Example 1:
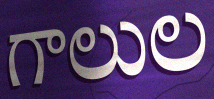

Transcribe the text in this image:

గాలుల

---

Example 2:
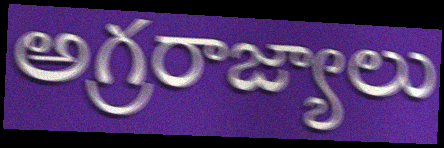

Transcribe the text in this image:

అగ్రరాజ్యాలు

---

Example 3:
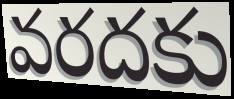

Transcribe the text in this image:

వరదకు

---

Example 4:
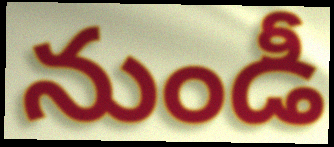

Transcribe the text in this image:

నుండీ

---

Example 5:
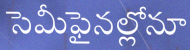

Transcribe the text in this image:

సెమీఫైనల్లోనూ